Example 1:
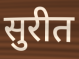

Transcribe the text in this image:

सुरीत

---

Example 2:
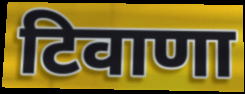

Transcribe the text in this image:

टिवाणा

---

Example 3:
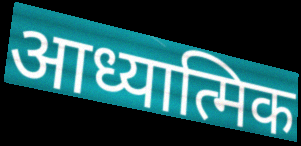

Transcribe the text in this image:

आध्यात्मिक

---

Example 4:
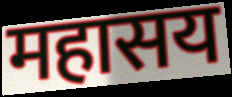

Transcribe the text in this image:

महासय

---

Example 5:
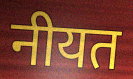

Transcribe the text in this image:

नीयत